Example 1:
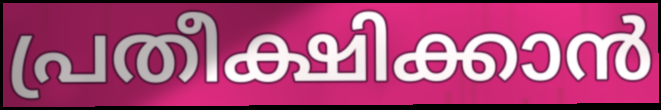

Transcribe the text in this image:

പ്രതീക്ഷിക്കാൻ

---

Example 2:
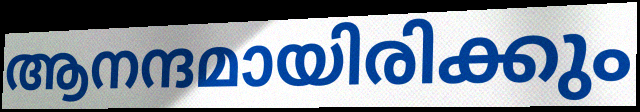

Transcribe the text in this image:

ആനന്ദമായിരിക്കും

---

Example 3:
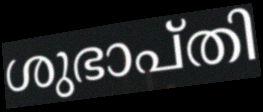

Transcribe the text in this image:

ശുഭാപ്തി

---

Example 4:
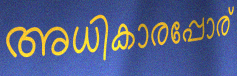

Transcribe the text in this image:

അധികാരപ്പോര്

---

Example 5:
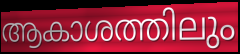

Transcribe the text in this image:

ആകാശത്തിലും